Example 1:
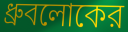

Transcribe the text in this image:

ধ্রুবলোকের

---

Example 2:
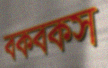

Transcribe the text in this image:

বকবকস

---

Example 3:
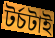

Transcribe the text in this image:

টর্চটাই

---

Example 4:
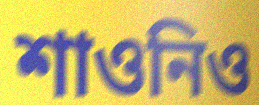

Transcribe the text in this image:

শাওনিও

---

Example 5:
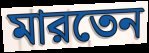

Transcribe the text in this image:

মারতেন